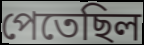
পেতেছিল